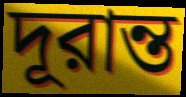
দূরান্ত